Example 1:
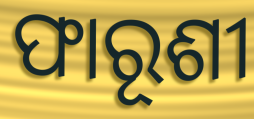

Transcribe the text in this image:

ଫାରୂଶୀ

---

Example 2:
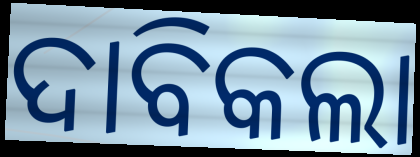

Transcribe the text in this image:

ଦାବିକଲା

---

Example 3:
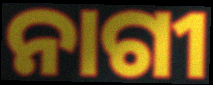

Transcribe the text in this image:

ନାଗୀ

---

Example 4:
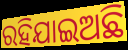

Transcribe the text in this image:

ରହିଯାଇଅଛି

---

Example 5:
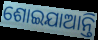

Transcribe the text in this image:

ଶୋଇଯାଆନ୍ତି